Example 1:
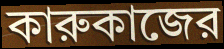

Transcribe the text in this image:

কারুকাজের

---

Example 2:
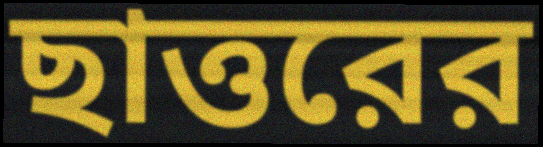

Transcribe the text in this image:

ছাত্তরের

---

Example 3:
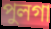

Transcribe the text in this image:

পুলগা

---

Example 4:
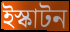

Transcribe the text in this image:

ইস্কাটন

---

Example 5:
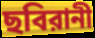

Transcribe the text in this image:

ছবিরানী